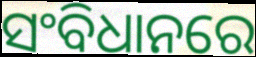
ସଂବିଧାନରେ